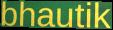
bhautik